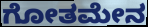
ಗೋತಮೇನ